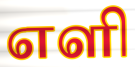
எளி